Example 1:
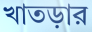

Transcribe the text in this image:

খাতড়ার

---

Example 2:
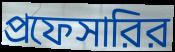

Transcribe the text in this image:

প্রফেসারির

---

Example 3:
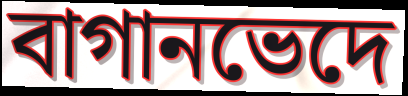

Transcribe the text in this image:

বাগানভেদে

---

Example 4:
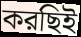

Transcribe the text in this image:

করছিই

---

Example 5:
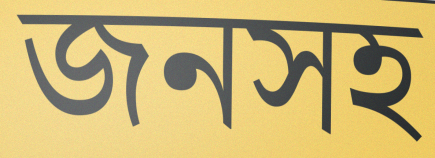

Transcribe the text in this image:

জনসহ